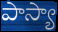
పాస్యా